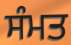
ਸੰਮਤ